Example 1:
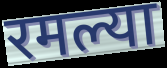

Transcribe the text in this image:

रमल्या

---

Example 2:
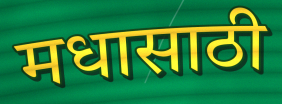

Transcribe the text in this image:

मधासाठी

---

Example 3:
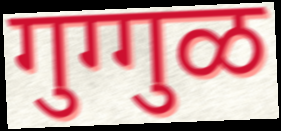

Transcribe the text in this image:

गुग्गुळ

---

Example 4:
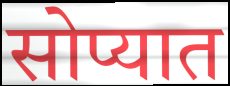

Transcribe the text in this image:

सोप्यात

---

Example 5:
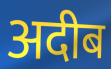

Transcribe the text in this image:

अदीब